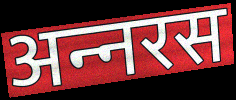
अन्नरस